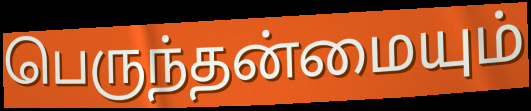
பெருந்தன்மையும்